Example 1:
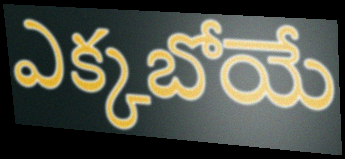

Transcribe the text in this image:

ఎక్కబోయే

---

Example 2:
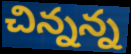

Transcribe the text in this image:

చిన్నన్న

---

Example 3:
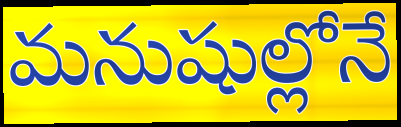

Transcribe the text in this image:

మనుషుల్లోనే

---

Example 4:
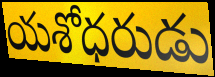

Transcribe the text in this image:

యశోధరుడు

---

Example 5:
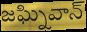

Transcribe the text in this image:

జఘ్నివాన్